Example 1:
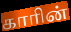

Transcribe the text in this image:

காரின்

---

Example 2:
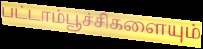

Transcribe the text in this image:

பட்டாம்பூச்சிகளையும்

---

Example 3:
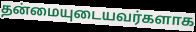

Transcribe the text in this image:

தன்மையுடையவர்களாக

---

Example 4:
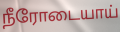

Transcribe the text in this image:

நீரோடையாய்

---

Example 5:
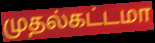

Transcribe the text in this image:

முதல்கட்டமா